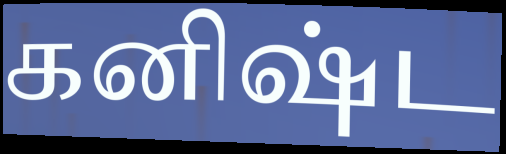
கனிஷ்ட